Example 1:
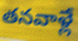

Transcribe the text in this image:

తనవాళ్లే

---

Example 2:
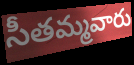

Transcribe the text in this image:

సీతమ్మవారు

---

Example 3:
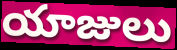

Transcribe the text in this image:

యాజులు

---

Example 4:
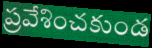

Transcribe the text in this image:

ప్రవేశించకుండ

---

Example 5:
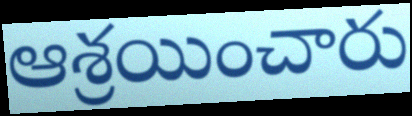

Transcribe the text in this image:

ఆశ్రయించారు